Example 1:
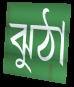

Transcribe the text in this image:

ঝুঠা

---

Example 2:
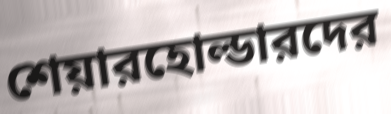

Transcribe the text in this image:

শেয়ারহোল্ডারদের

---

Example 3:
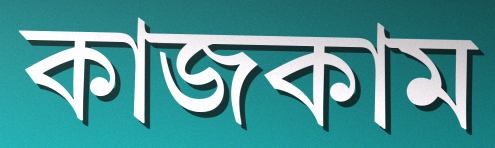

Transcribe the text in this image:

কাজকাম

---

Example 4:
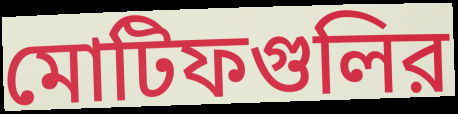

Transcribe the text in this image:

মোটিফগুলির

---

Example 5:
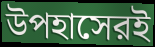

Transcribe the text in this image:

উপহাসেরই